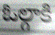
ఓల్గాకి